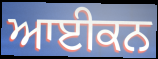
ਆਈਕਨ